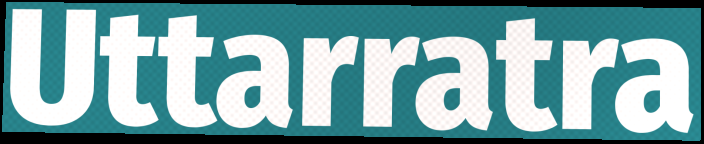
Uttarratra